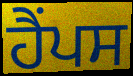
ਹੈਂਪਸ